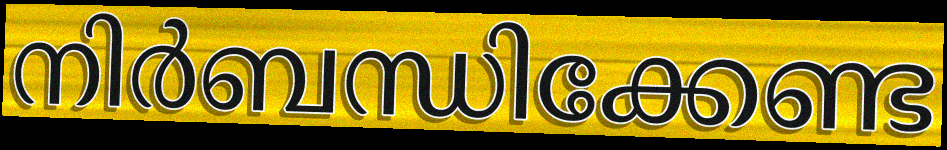
നിർബന്ധിക്കേണ്ട